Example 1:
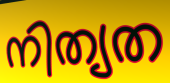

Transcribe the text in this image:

നിത്യത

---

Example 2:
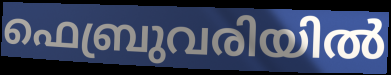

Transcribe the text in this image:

ഫെബ്രുവരിയിൽ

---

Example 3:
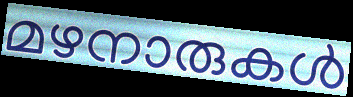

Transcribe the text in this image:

മഴനാരുകൾ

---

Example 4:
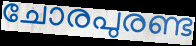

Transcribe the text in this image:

ചോരപുരണ്ട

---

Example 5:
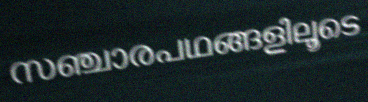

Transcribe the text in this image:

സഞ്ചാരപഥങ്ങളിലൂടെ